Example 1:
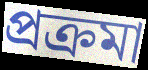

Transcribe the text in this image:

প্রক্রমা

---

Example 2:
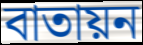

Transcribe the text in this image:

বাতায়ন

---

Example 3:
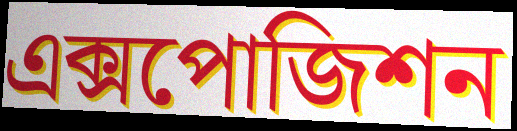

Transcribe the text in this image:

এক্সপোজিশন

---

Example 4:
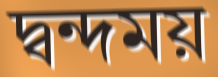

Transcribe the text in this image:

দ্বন্দময়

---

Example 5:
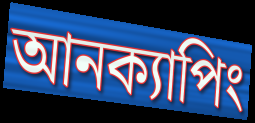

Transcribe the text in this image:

আনক্যাপিং